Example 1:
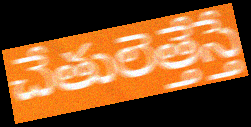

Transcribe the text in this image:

చేతులెత్తేస్తే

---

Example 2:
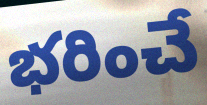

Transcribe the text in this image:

భరించే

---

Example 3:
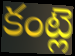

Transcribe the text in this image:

కంట్లె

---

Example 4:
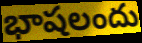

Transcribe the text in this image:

భాషలందు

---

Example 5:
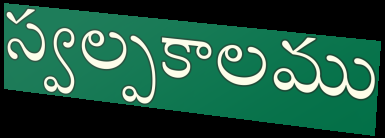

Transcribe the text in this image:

స్వల్పకాలము